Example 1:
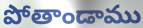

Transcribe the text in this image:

పోతాండాము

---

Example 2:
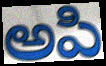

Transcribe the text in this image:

అపి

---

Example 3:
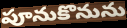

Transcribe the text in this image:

పూనుకొనును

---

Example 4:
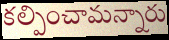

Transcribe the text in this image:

కల్పించామన్నారు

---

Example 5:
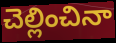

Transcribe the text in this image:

చెల్లించినా